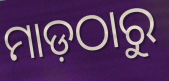
ମାଡ଼ଠାରୁ